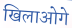
खिलाओगे